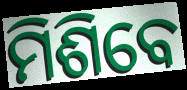
ମିଶିବେ